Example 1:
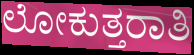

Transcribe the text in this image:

ಲೋಕುತ್ತರಾತಿ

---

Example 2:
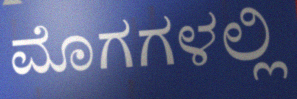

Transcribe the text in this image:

ಮೊಗಗಳಲ್ಲಿ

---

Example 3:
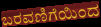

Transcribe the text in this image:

ಬರವಣಿಗೆಯಿಂದ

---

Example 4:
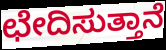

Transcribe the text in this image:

ಛೇದಿಸುತ್ತಾನೆ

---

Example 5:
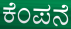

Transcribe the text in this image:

ಕೆಂಪನೆ